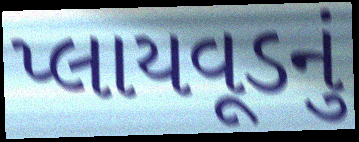
પ્લાયવૂડનું